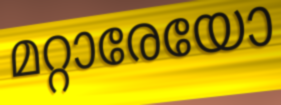
മറ്റാരേയോ